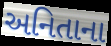
અનિતાના